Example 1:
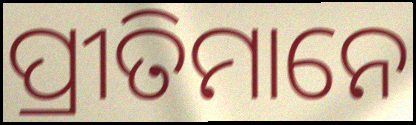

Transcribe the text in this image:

ପ୍ରୀତିମାନେ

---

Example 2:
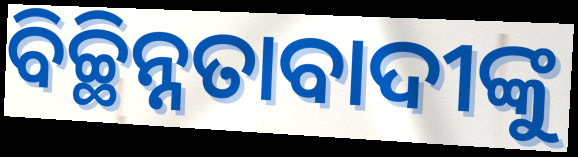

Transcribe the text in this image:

ବିଚ୍ଛିନ୍ନତାବାଦୀଙ୍କୁ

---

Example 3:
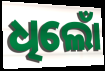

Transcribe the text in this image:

ଧିଲୋଁ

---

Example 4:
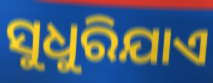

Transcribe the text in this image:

ସୁଧୁରିଯାଏ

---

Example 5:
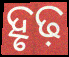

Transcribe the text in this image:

ହୃଢ଼